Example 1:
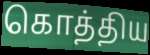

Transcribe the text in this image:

கொத்திய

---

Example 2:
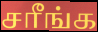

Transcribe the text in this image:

சரீங்க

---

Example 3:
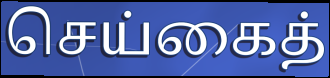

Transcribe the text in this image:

செய்கைத்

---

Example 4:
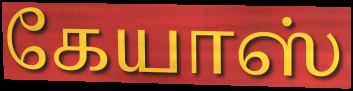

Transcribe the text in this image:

கேயாஸ்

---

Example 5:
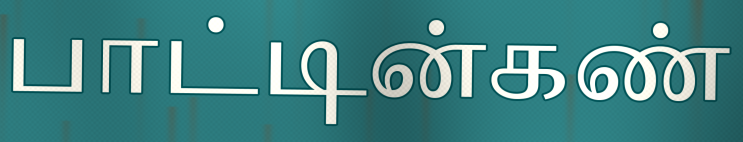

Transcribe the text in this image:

பாட்டின்கண்